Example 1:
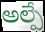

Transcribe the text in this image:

అల్పే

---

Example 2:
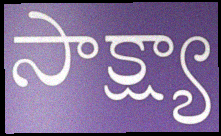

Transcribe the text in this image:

సాక్ష్యా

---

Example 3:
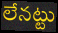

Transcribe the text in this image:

లేనట్టు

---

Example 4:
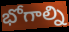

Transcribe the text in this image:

భోగాల్ని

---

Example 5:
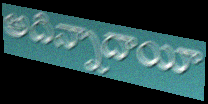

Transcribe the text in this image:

అదిన్నాదాయీ